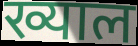
ख्याल